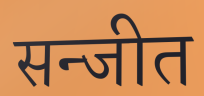
सन्जीत